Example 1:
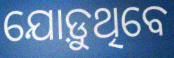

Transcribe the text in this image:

ଯୋଡ଼ୁଥିବେ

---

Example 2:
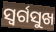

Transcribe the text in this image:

ସ୍ୱର୍ଗସୁଖ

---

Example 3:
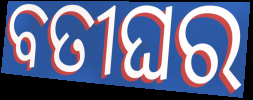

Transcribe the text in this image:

ବତୀଘର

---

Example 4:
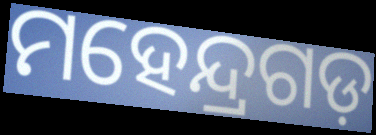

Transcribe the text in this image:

ମହେନ୍ଦ୍ରଗଡ଼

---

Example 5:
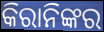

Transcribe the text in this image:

କିରାନିଙ୍କର